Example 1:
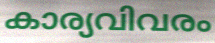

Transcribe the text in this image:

കാര്യവിവരം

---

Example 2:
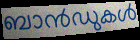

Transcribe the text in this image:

ബാൻഡുകൾ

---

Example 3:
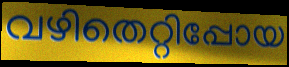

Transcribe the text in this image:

വഴിതെറ്റിപ്പോയ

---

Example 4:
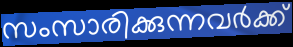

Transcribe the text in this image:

സംസാരിക്കുന്നവർക്ക്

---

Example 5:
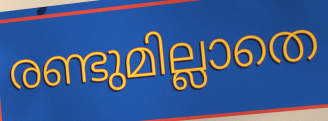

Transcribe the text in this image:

രണ്ടുമില്ലാതെ